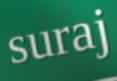
suraj